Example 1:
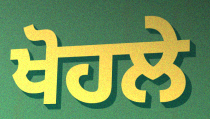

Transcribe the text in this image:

ਖੋਹਲੇ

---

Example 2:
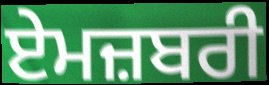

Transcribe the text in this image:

ਏਮਜ਼ਬਰੀ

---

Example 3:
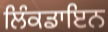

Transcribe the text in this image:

ਲਿੰਕਡਾਇਨ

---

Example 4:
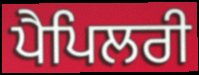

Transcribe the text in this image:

ਪੈਪਿਲਰੀ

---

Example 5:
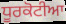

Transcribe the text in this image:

ਧੂਰਕੋਟੀਆ